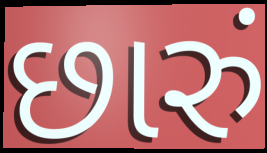
છારું